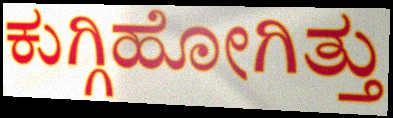
ಕುಗ್ಗಿಹೋಗಿತ್ತು